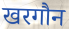
खरगौन